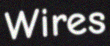
Wires